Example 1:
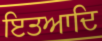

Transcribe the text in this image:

ਇਤਆਦਿ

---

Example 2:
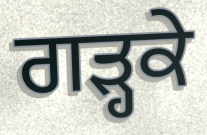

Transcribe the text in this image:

ਗੜ੍ਹਕੇ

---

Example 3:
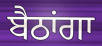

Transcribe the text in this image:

ਬੈਠਾਂਗਾ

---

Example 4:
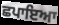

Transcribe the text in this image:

ਛਪਾਇਆ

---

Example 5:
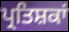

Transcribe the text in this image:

ਪ੍ਰਤਿਸ਼ਕਾਂ